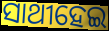
ସାଥୀହେଇ